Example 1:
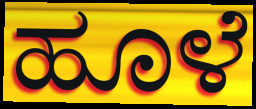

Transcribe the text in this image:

ಹೂಳೆ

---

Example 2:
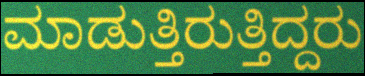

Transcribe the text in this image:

ಮಾಡುತ್ತಿರುತ್ತಿದ್ದರು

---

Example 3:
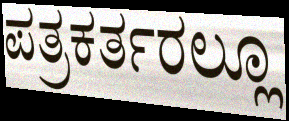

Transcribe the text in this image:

ಪತ್ರಕರ್ತರಲ್ಲೂ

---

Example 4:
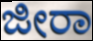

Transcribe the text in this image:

ಜೀರಾ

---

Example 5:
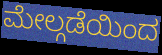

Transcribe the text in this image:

ಮೇಲ್ಗಡೆಯಿಂದ